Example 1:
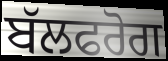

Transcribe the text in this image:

ਬੱਲਫਰੋਗ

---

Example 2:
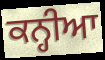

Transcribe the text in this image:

ਕਨ੍ਹੀਆ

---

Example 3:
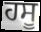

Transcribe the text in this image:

ਹਸੂ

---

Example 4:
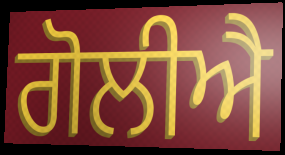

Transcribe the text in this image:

ਗੋਲੀਐ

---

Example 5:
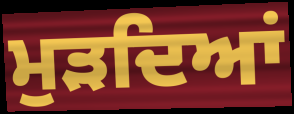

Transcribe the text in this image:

ਮੁੜਦਿਆਂ